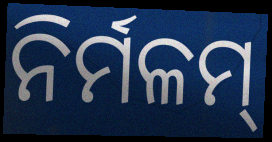
ନିର୍ମଳମ୍